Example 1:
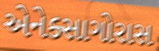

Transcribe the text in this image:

એનેક્સાગોરાસ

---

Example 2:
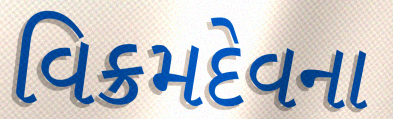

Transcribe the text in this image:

વિક્રમદેવના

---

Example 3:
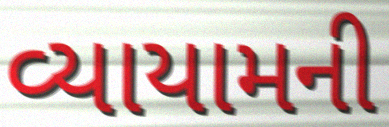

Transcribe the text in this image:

વ્યાયામની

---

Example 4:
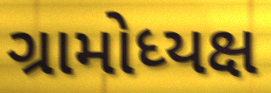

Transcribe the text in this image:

ગ્રામોધ્યક્ષ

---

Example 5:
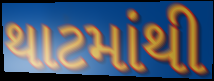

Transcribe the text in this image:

થાટમાંથી